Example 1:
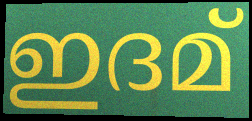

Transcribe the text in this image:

ഇദമ്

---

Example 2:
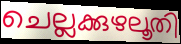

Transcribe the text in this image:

ചെല്ലക്കുഴലൂതി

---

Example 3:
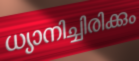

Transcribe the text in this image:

ധ്യാനിച്ചിരിക്കും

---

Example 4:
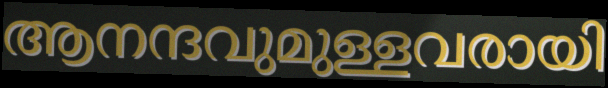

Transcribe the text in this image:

ആനന്ദവുമുള്ളവരായി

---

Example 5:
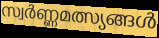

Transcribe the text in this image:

സ്വർണ്ണമത്സ്യങ്ങൾ